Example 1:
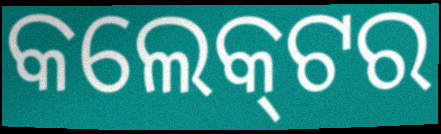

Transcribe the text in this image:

କଲେକ୍‌ଟର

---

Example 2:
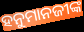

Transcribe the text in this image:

ହନୁମାନଜୀଙ୍କ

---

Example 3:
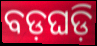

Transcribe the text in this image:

ବଡ଼ଘଡ଼ି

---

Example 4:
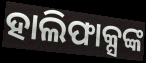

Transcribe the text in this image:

ହାଲିଫାକ୍ସଙ୍କ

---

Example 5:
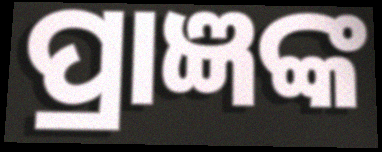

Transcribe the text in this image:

ପ୍ରାଜ୍ଞଙ୍କ